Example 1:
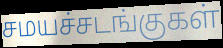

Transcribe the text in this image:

சமயச்சடங்குகள்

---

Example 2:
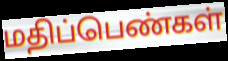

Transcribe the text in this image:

மதிப்பெண்கள்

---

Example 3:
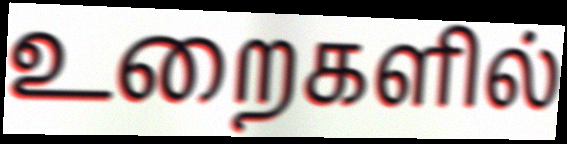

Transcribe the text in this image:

உறைகளில்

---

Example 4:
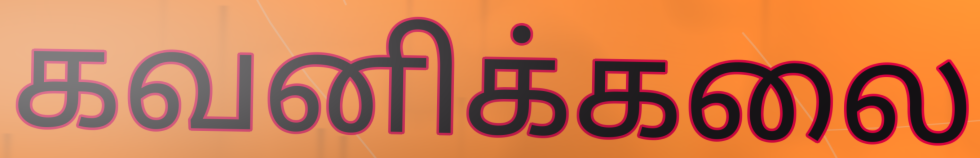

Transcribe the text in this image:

கவனிக்கலை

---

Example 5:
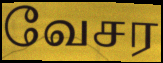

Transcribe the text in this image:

வேசர